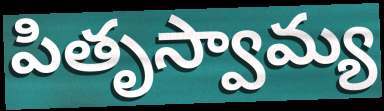
పితృస్వామ్య